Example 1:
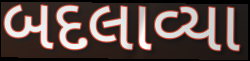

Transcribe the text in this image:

બદલાવ્યા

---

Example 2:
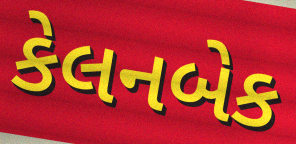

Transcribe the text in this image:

કેલનબેક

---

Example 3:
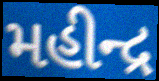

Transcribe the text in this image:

મહીન્દ્ર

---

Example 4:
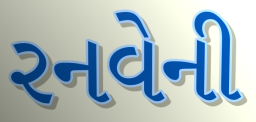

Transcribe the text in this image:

રનવેની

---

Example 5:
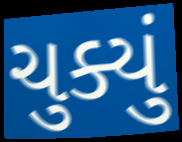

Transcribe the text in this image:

ચુક્યું